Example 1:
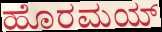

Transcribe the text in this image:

ಹೊರಮಯ್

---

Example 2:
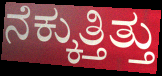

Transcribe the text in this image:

ನೆಕ್ಕುತ್ತಿತ್ತು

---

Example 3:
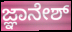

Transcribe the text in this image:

ಜ್ಞಾನೇಶ್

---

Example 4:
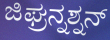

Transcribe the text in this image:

ಜಿಘ್ರನ್ನಶ್ನನ್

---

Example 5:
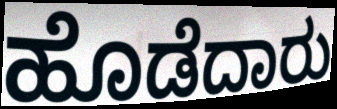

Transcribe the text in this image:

ಹೊಡೆದಾರು